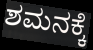
ಶಮನಕ್ಕೆ